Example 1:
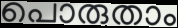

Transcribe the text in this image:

പൊരുതാം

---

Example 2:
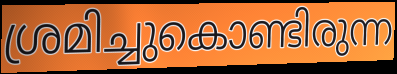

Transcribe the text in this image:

ശ്രമിച്ചുകൊണ്ടിരുന്ന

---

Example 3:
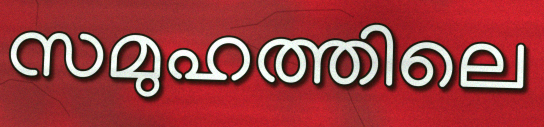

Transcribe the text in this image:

സമുഹത്തിലെ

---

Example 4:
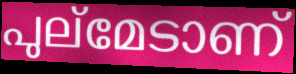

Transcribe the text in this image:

പുല്മേടാണ്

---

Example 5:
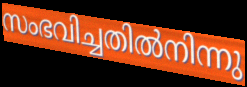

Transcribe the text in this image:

സംഭവിച്ചതിൽനിന്നു